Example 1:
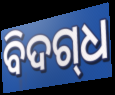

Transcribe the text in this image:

ବିଦଗ୍‍ଧ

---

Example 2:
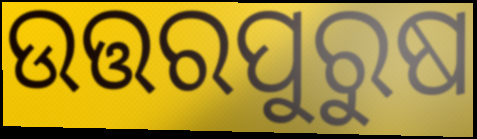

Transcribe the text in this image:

ଉତ୍ତରପୁରୁଷ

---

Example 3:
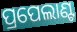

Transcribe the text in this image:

ପ୍ରପେଲାଣ୍ଟ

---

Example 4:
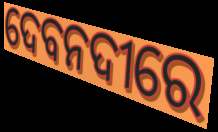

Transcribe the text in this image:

ଦେବନଦୀରେ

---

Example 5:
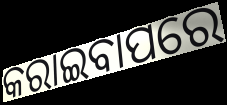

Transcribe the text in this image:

କରାଇବାପରେ